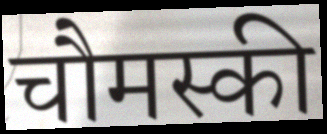
चौमस्की